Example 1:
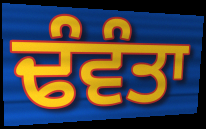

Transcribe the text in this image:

ਢੰਵੰਤਾ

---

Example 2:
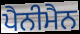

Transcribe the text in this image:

ਪੈਨੀਮੈਨ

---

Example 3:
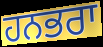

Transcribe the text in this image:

ਹਨਭਰਾ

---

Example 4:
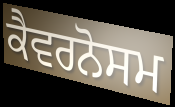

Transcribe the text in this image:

ਕੈਵਰਨੋਸਮ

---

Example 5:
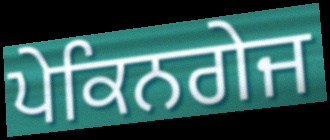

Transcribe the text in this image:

ਪੇਕਿਨਗੇਜ